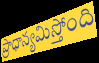
ప్రాధాన్యమిస్తోంది